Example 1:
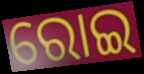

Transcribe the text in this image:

ରୋଇ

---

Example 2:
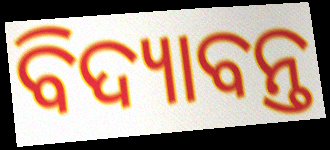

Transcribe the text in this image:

ବିଦ୍ୟାବନ୍ତ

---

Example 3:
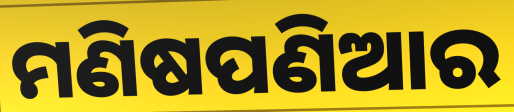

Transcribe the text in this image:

ମଣିଷପଣିଆର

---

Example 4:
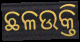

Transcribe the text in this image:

ଛଳଉକ୍ତି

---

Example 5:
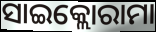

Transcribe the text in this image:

ସାଇକ୍ଲୋରାମା